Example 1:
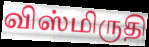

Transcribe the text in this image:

விஸ்மிருதி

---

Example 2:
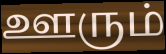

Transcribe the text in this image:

ஊரும்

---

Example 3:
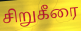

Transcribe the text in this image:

சிறுகீரை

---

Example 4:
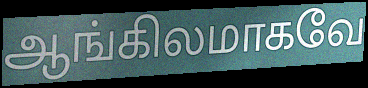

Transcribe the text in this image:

ஆங்கிலமாகவே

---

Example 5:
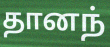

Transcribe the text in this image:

தானந்